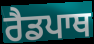
ਰੈਡਪਾਥ